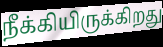
நீக்கியிருக்கிறது